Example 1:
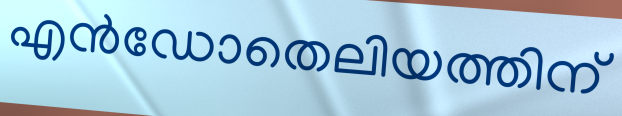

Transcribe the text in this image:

എൻഡോതെലിയത്തിന്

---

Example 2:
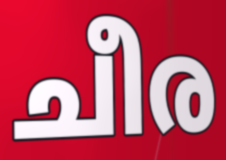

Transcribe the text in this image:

ചീര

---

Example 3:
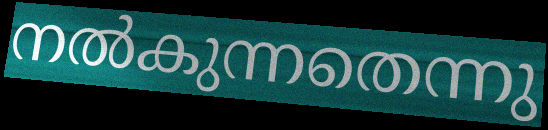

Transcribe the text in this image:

നൽകുന്നതെന്നു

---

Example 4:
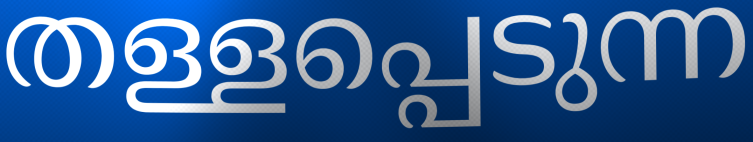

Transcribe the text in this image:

തള്ളപ്പെടുന്ന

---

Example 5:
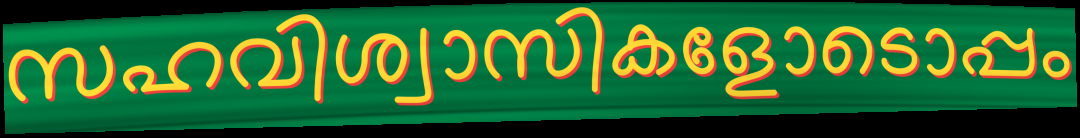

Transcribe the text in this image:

സഹവിശ്വാസികളോടൊപ്പം